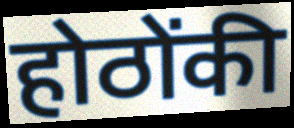
होठोंकी